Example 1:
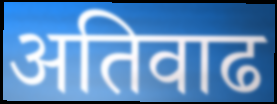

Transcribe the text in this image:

अतिवाढ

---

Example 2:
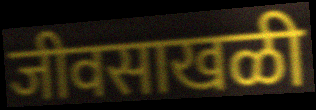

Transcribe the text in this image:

जीवसाखळी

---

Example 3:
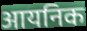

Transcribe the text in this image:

आयनिक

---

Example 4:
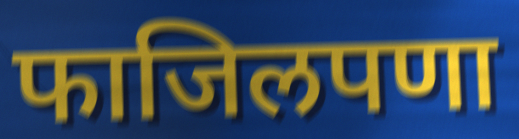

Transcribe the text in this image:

फाजिलपणा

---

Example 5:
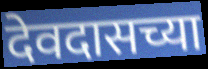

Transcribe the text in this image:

देवदासच्या